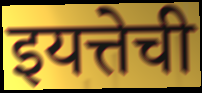
इयत्तेची